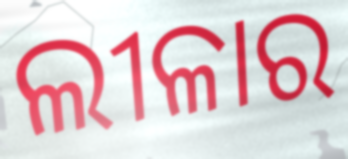
ଲୀଳାର